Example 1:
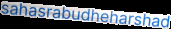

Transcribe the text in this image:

sahasrabudheharshad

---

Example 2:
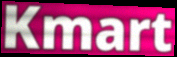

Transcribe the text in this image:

Kmart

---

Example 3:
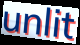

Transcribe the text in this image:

unlit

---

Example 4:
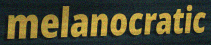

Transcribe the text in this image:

melanocratic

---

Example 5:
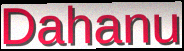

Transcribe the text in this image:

Dahanu